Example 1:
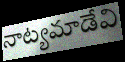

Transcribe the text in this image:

నాట్యమాడేవి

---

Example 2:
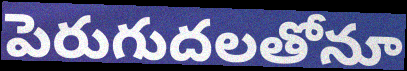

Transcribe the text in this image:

పెరుగుదలతోనూ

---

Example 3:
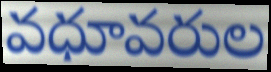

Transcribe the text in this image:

వధూవరుల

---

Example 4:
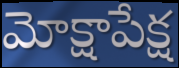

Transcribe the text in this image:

మోక్షాపేక్ష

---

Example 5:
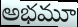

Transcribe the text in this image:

అభమూ